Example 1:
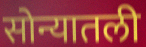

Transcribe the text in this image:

सोन्यातली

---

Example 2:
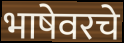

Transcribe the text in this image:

भाषेवरचे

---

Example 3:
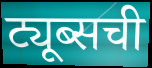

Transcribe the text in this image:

ट्यूब्सची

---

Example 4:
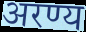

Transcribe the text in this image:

अरण्य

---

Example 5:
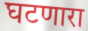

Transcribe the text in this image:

घटणारा